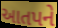
આતપને